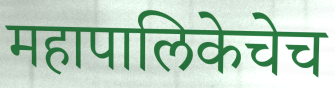
महापालिकेचेच